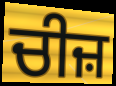
ਚੀਜ਼